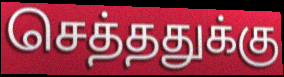
செத்ததுக்கு